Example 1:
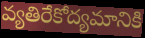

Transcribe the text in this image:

వ్యతిరేకోద్యమానికి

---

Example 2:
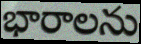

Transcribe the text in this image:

భారాలను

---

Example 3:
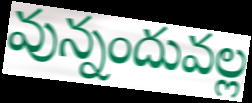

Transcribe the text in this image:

వున్నందువల్ల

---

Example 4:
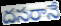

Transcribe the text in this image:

దసరానే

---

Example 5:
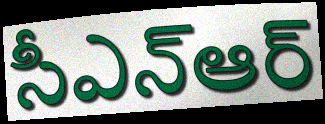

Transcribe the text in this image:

సీఎన్ఆర్